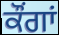
ਕੌਂਗਾਂ